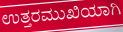
ಉತ್ತರಮುಖಿಯಾಗಿ